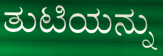
ತುಟಿಯನ್ನು